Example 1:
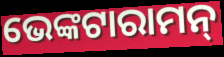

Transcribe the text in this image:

ଭେଙ୍କଟାରାମନ୍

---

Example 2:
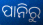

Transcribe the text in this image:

ପାନିରୁ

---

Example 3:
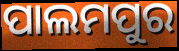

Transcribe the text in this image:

ପାଲମପୁର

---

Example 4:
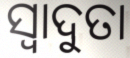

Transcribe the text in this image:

ସ୍ୱାଦୁତା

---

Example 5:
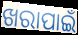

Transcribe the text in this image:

ଖରାପାଇଁ